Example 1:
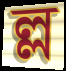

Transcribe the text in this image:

ল্ল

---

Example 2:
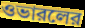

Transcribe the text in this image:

ওভারলের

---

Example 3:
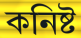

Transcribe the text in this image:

কনিষ্ট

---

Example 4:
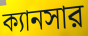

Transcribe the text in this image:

ক্যানসার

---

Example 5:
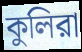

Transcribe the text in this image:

কুলিরা